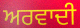
ਅਰਵਾਦੀ